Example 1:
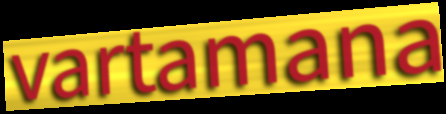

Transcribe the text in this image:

vartamana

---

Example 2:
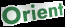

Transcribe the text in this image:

Orient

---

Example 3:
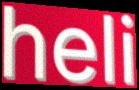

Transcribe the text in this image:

heli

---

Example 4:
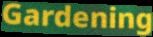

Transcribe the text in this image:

Gardening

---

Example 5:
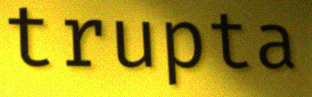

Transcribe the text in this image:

trupta